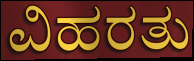
ವಿಹರತು